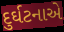
દુર્ઘટનાએ